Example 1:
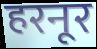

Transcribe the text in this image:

हरनूर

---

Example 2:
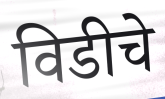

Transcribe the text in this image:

विडीचे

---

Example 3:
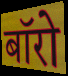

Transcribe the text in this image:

बॉरो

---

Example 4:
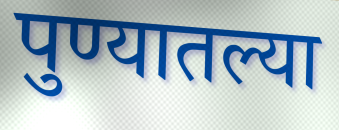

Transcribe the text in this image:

पुण्यातल्या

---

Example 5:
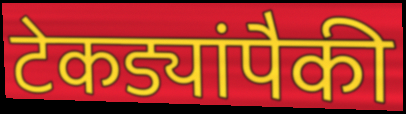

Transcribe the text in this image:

टेकड्यांपैकी